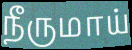
நீருமாய்